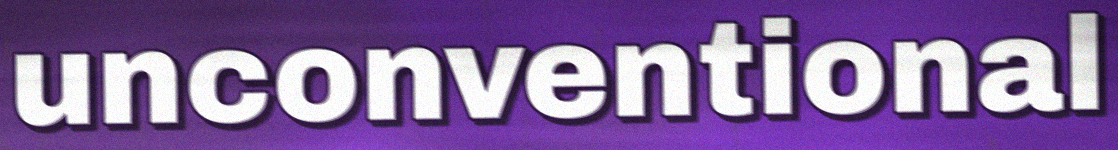
unconventional